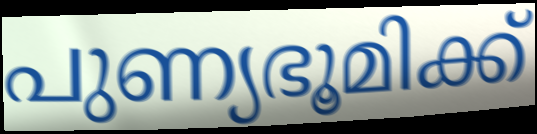
പുണ്യഭൂമിക്ക്